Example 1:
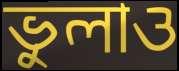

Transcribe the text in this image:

ভুলাও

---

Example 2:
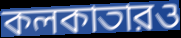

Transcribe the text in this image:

কলকাতারও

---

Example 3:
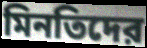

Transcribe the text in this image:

মিনতিদের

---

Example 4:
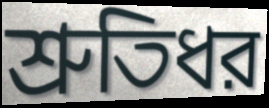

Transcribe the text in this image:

শ্রুতিধর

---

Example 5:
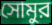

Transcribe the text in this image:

সোমুর